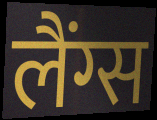
लैंग्स